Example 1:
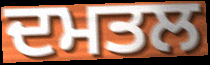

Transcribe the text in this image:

ਦਮਤਲ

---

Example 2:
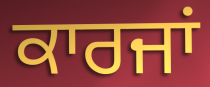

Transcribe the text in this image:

ਕਾਰਜਾਂ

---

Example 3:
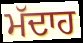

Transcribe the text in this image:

ਮੱਦਾਹ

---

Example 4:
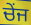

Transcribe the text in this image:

ਚੇਂਜ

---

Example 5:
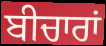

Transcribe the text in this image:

ਬੀਚਾਰਾਂ